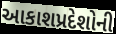
આકાશપ્રદેશોની